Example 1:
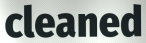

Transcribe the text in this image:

cleaned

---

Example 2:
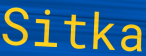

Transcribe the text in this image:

Sitka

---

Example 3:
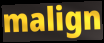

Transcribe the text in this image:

malign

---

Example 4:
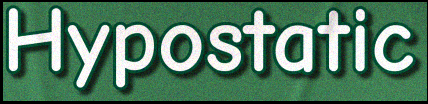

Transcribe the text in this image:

Hypostatic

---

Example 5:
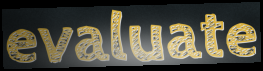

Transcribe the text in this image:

evaluate